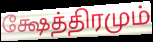
க்ஷேத்திரமும்